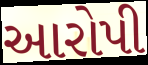
આરોપી